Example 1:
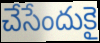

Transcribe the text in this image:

చేసేందుకై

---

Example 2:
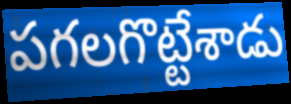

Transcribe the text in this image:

పగలగొట్టేశాడు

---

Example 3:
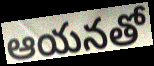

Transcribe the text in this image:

ఆయనతో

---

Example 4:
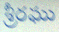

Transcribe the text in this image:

శ్రీరఘు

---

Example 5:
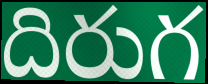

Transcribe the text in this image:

దిరుగ